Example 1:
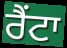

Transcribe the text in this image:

ਰੈਂਟਾ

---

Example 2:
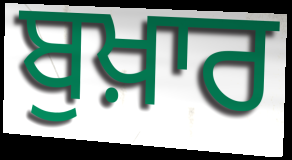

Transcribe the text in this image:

ਬੁਖ਼ਾਰ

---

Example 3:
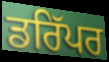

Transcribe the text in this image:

ਡਰਿੱਪਰ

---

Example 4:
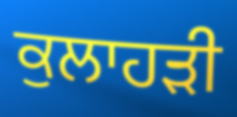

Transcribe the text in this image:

ਕੁਲਾਹੜੀ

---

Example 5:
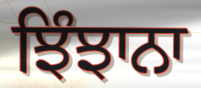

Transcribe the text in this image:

ਝਿੰਝਾਨਾ